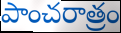
పాంచరాత్రం